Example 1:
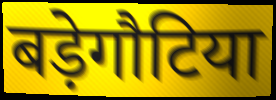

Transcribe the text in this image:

बड़ेगौटिया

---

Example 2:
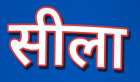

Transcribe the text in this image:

सीला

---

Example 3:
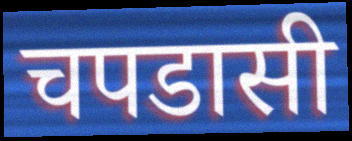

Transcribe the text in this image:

चपडासी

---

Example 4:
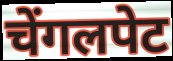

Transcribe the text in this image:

चेंगलपेट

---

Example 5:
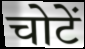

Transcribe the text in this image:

चोटें